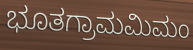
ಭೂತಗ್ರಾಮಮಿಮಂ